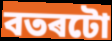
বতৰটো